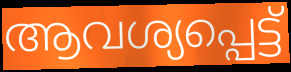
ആവശ്യപ്പെട്ട്